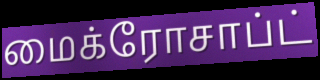
மைக்ரோசாப்ட்